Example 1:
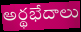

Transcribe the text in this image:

అర్థభేదాలు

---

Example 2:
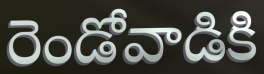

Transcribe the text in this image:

రెండోవాడికి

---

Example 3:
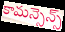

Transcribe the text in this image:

కామన్సెన్స్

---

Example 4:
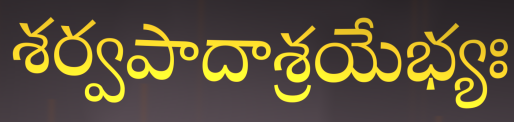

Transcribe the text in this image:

శర్వపాదాశ్రయేభ్యః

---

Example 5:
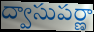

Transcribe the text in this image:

ద్వాసుపర్ణా